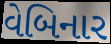
વેબિનાર